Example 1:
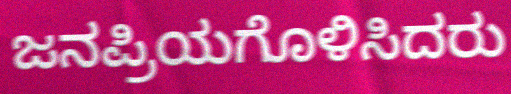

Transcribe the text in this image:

ಜನಪ್ರಿಯಗೊಳಿಸಿದರು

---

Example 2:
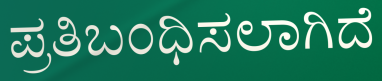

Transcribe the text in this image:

ಪ್ರತಿಬಂಧಿಸಲಾಗಿದೆ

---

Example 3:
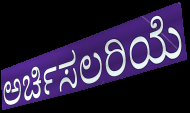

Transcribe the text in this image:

ಅರ್ಚಿಸಲರಿಯೆ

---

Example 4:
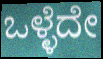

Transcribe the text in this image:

ಒಳ್ಳೆದೇ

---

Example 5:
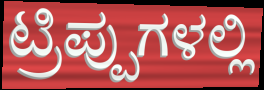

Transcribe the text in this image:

ಟ್ರಿಪ್ಪುಗಳಲ್ಲಿ